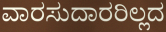
ವಾರಸುದಾರರಿಲ್ಲದ